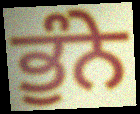
ਭੁੰਨੇ